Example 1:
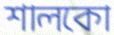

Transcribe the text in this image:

শালকো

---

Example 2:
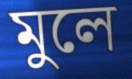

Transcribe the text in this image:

মুলে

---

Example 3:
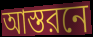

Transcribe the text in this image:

আস্তরনে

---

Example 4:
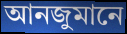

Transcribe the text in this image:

আনজুমানে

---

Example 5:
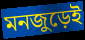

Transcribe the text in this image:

মনজুড়েই